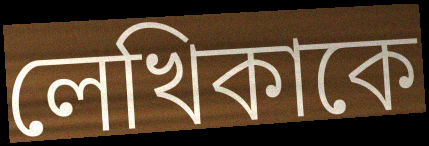
লেখিকাকে